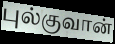
புல்குவான்